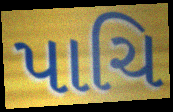
પાચિ